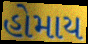
હોમાય